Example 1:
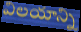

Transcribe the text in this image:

విలయాన్ని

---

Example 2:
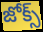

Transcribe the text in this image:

జోక్స్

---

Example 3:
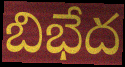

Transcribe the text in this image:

బిభేద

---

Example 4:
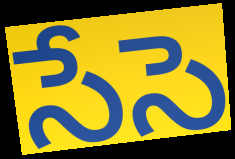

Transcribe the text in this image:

సేసె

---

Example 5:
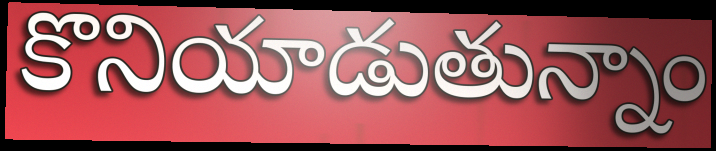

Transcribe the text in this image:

కొనియాడుతున్నాం